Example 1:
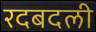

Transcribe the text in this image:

रदबदली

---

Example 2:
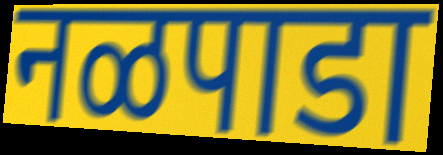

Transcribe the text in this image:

नळपाडा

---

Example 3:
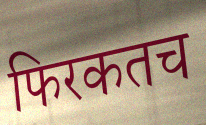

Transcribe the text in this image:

फिरकतच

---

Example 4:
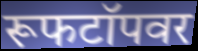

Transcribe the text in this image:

रूफटॉपवर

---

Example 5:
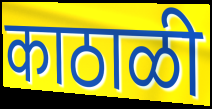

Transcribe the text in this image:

काठाळी